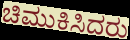
ಚಿಮುಕಿಸಿದರು